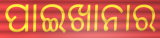
ପାଇଖାନାର